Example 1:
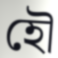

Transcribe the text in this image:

হৌ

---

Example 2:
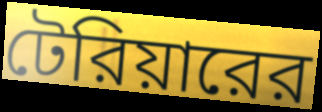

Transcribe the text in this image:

টেরিয়ারের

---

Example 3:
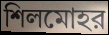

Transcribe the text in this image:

শিলমোহর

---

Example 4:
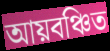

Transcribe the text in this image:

আয়বঞ্চিত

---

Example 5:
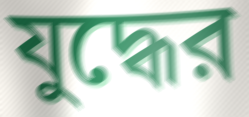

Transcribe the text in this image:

যুদ্ধের